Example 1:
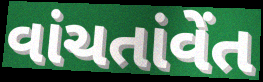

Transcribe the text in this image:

વાંચતાંવેંત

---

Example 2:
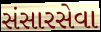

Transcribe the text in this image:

સંસારસેવા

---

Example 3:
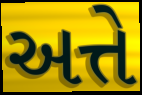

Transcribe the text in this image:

અત્તે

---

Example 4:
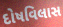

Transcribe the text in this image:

દોષવિલાસ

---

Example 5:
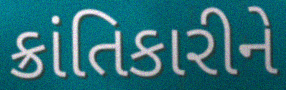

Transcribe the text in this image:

ક્રાંતિકારીને